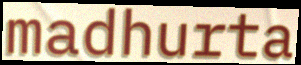
madhurta